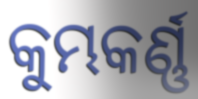
କୁମ୍ଭକର୍ଣ୍ଣ